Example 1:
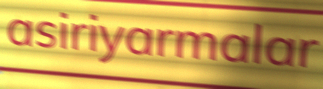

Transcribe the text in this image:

asiriyarmalar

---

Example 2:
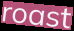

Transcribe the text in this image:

roast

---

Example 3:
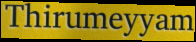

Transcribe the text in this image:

Thirumeyyam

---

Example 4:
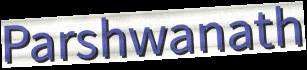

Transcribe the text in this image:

Parshwanath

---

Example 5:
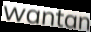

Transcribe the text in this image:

wantan